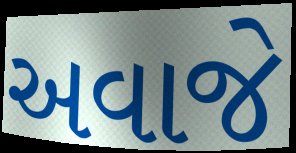
અવાજે